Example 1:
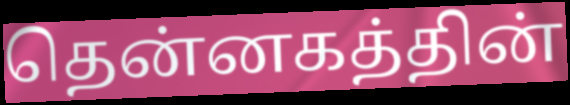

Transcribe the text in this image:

தென்னகத்தின்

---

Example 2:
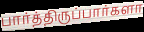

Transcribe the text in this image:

பார்த்திருப்பார்களா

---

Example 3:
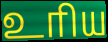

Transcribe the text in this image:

உரிய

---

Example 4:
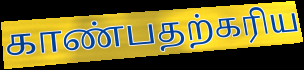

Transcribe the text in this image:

காண்பதற்கரிய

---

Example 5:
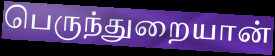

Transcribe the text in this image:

பெருந்துறையான்